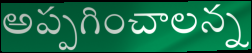
అప్పగించాలన్న